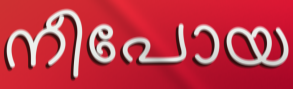
നീപോയ